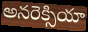
అనరెక్సియా